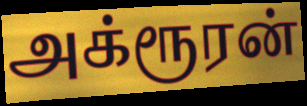
அக்ரூரன்